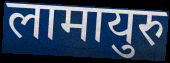
लामायुरु